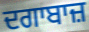
ਦਗਾਬਾਜ਼